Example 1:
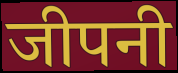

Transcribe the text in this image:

जीपनी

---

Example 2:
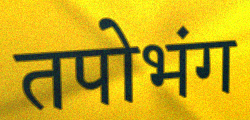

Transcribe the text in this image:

तपोभंग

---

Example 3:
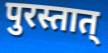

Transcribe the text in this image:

पुरस्तात्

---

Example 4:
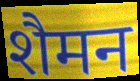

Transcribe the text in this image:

शैमन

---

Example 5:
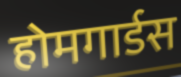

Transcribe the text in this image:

होमगार्डस